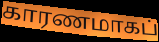
காரணமாகப்